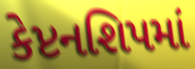
કેપ્ટનશિપમાં